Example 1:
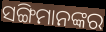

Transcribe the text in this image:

ସଙ୍ଗିମାନଙ୍କର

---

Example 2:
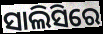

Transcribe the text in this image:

ସାଲିସିରେ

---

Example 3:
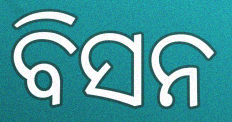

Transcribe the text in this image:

ବିସନ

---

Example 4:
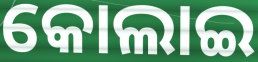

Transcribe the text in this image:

କୋଲାଇ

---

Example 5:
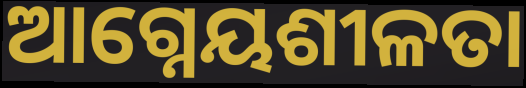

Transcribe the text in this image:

ଆଗ୍ନେୟଶୀଳତା